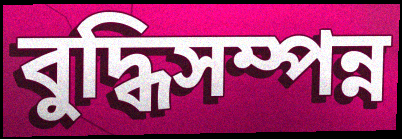
বুদ্ধিসম্পন্ন